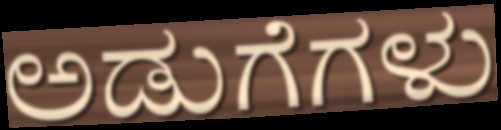
ಅಡುಗೆಗಳು